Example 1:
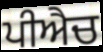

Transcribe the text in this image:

ਪੀਐਚ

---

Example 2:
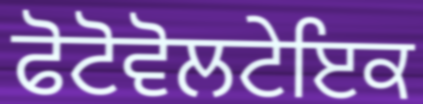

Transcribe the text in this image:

ਫੋਟੋਵੋਲਟੇਇਕ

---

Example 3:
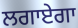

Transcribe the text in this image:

ਲਗਾਏਗਾ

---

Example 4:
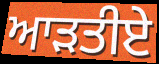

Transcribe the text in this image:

ਆੜਤੀਏ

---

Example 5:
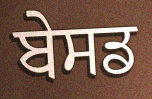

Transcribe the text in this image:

ਬੇਸਡ